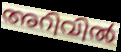
അറിവിൽ